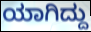
ಯಾಗಿದ್ದು